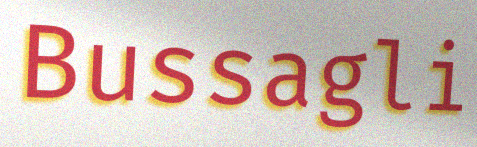
Bussagli